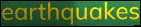
earthquakes